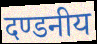
दण्डनीय